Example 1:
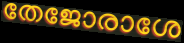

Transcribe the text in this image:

തേജോരാശേ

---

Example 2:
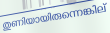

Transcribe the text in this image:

തുണിയായിരുന്നെങ്കില്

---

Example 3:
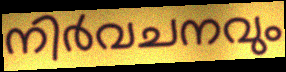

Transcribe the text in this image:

നിർവചനവും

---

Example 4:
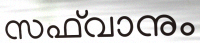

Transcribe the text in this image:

സഫ്‌വാനും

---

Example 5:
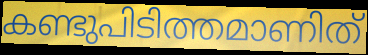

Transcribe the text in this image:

കണ്ടുപിടിത്തമാണിത്